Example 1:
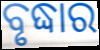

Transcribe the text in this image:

ବୃଦ୍ଧାର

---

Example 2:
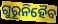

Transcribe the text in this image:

ଗୁରୂନିହୈବ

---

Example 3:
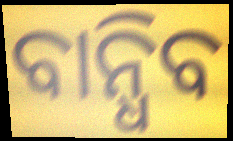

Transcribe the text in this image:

ବାନ୍ଧିବ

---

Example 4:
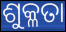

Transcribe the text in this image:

ଶୁକ୍ଳତା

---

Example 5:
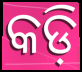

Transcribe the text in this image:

କଡ଼ି